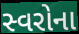
સ્વરોના